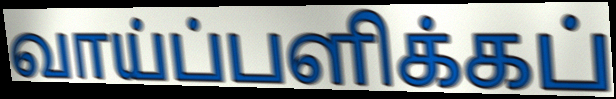
வாய்ப்பளிக்கப்